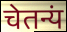
चेतन्यं